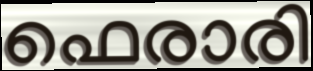
ഫെരാരി